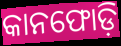
କାନଫୋଡ଼ି